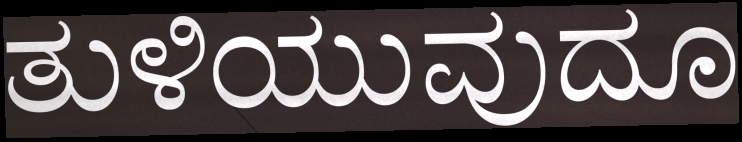
ತುಳಿಯುವುದೂ